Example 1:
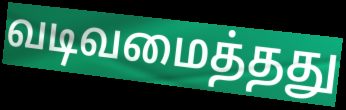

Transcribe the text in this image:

வடிவமைத்தது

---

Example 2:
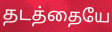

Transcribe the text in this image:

தடத்தையே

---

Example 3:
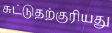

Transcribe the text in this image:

சுட்டுதற்குரியது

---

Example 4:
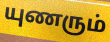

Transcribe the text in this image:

யுணரும்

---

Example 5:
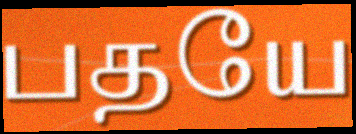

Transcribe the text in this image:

பதயே